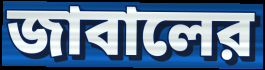
জাবালের